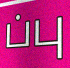
ப்பு